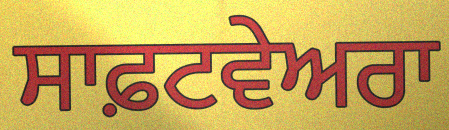
ਸਾਫ਼ਟਵੇਅਰਾ